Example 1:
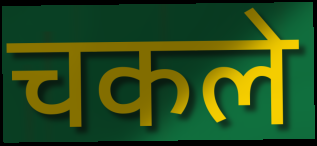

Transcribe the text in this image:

चकले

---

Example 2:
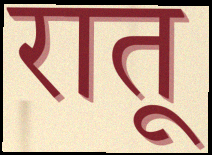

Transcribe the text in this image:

रातू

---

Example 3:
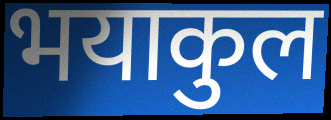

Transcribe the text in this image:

भयाकुल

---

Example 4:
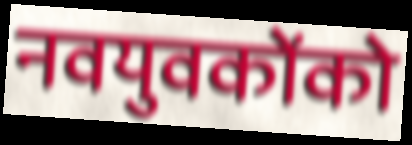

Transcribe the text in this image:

नवयुवकोंको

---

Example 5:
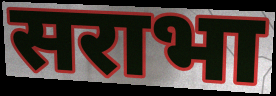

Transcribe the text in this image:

सराभा